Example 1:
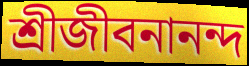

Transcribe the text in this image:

শ্রীজীবনানন্দ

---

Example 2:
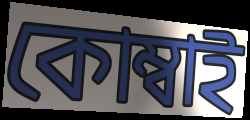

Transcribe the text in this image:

কোম্বাই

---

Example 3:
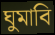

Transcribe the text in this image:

ঘুমাবি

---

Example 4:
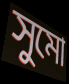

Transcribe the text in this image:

সুমো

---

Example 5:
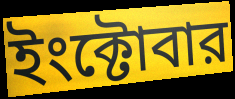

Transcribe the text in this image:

ইংক্টোবার